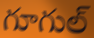
గూగుల్